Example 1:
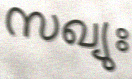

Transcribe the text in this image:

സഖ്യുഃ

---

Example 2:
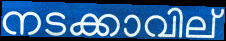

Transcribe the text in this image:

നടക്കാവില്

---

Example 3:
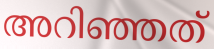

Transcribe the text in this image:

അറിഞ്ഞത്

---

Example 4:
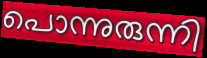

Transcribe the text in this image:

പൊന്നുരുന്നി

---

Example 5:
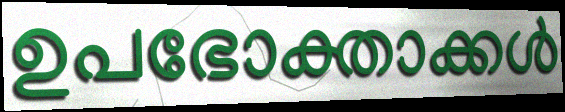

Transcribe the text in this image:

ഉപഭോക്താക്കൾ